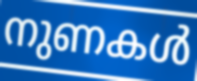
നുണകൾ